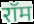
रॉम